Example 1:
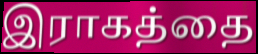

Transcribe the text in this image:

இராகத்தை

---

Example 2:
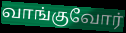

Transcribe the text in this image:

வாங்குவோர்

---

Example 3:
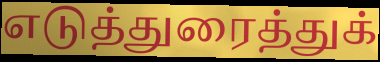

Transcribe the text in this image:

எடுத்துரைத்துக்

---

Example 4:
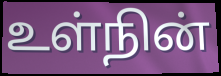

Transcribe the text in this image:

உள்நின்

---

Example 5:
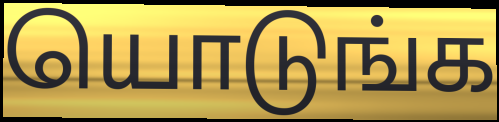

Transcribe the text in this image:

யொடுங்க